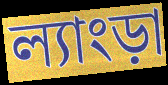
ল্যাংড়া